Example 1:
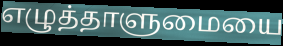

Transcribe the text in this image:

எழுத்தாளுமையை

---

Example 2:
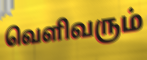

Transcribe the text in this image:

வெளிவரும்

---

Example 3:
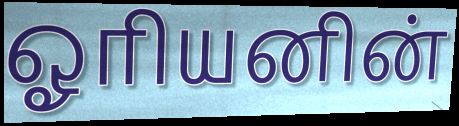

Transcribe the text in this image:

ஓரியனின்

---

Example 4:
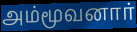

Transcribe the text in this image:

அம்மூவனார்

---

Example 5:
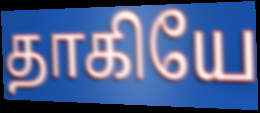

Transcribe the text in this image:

தாகியே